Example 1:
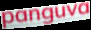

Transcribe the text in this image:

panguva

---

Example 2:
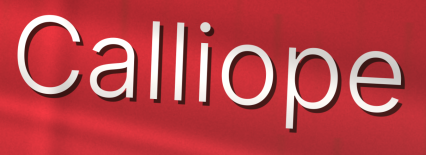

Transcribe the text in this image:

Calliope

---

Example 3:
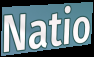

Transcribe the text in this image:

Natio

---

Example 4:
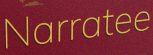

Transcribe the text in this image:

Narratee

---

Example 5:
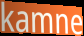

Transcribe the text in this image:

kamne